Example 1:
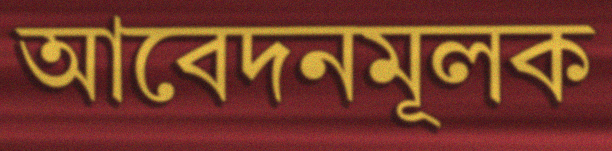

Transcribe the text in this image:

আবেদনমূলক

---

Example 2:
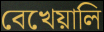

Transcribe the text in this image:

বেখেয়ালি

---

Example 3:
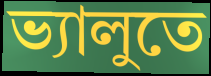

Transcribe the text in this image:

ভ্যালুতে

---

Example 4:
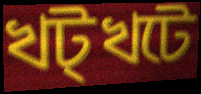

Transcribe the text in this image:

খট্‌খটে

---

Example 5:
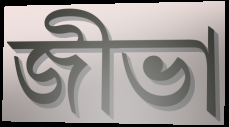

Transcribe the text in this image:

জীভা